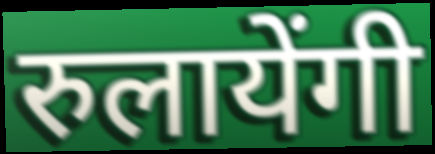
रुलायेंगी